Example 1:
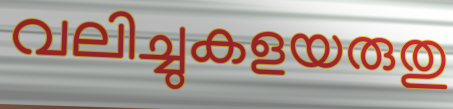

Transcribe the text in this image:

വലിച്ചുകളയരുതു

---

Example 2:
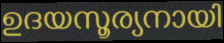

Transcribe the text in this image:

ഉദയസൂര്യനായി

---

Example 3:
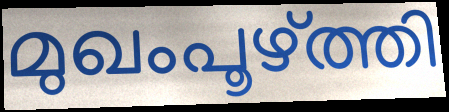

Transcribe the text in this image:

മുഖംപൂഴ്ത്തി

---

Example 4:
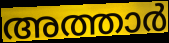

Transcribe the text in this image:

അത്താർ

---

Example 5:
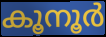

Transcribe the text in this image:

കൂനൂർ